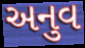
અનુવ